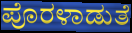
ಪೊರಳಾಡುತೆ